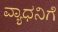
ವ್ಯಾಧನಿಗೆ